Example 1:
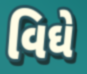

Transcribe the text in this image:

વિઘે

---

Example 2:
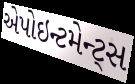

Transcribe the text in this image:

એપોઇન્ટમેન્ટ્સ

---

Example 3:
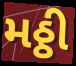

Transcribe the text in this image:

મઠ્ઠી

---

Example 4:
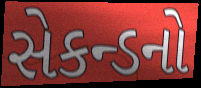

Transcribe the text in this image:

સેકન્ડનો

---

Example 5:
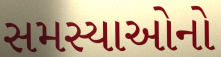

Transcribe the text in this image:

સમસ્યાઓનો